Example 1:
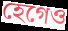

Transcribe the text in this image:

হেগেও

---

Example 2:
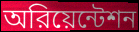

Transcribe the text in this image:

অরিয়েন্টেশন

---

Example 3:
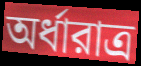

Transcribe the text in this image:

অর্ধারাত্র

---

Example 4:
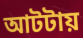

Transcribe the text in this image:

আটটায়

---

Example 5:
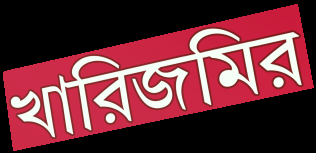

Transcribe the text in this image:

খারিজমির